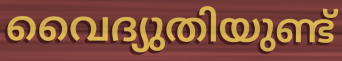
വൈദ്യുതിയുണ്ട്